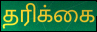
தரிக்கை